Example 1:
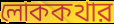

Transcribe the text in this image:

লোককথার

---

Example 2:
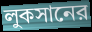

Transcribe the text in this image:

লুকসানের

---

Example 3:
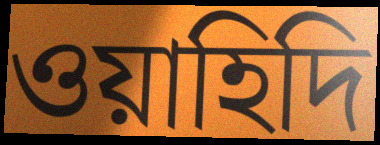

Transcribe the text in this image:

ওয়াহিদি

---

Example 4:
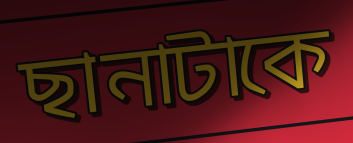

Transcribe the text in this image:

ছানাটাকে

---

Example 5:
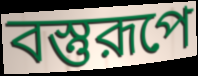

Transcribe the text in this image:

বস্তুরূপে